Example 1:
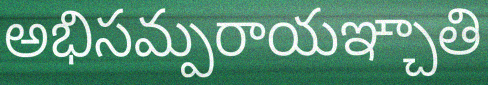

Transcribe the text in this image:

అభిసమ్పరాయఞ్చాతి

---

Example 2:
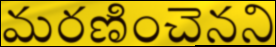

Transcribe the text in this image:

మరణించెనని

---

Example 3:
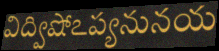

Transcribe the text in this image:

విద్విషోఽప్యనునయ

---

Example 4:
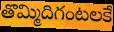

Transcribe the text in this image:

తొమ్మిదిగంటలకే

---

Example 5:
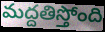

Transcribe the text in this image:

మద్దతిస్తోంది